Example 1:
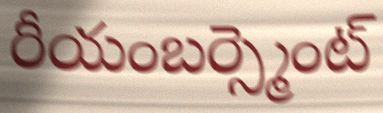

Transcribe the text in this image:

రీయంబర్స్మెంట్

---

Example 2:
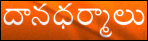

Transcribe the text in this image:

దానధర్మాలు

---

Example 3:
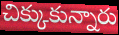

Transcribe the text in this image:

చిక్కుకున్నారు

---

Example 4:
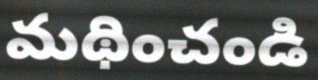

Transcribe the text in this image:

మథించండి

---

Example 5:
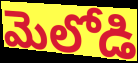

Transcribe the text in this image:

మెలోడి